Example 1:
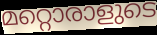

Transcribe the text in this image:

മറ്റൊരാളുടെ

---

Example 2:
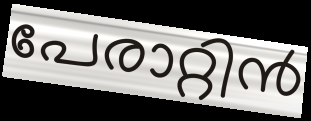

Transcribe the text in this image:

പേരാറ്റിൻ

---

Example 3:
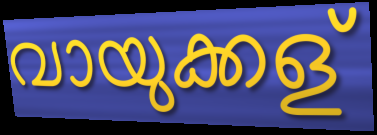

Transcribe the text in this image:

വായുക്കള്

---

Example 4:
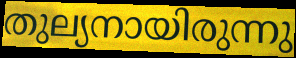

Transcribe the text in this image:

തുല്യനായിരുന്നു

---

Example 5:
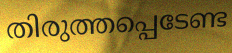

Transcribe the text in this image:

തിരുത്തപ്പെടേണ്ട